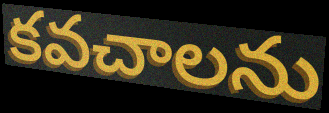
కవచాలను